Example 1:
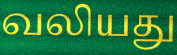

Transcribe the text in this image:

வலியது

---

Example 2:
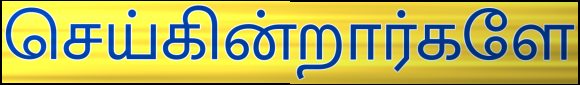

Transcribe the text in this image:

செய்கின்றார்களே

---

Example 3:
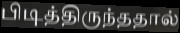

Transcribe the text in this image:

பிடித்திருந்ததால்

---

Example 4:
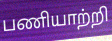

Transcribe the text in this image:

பணியாற்றி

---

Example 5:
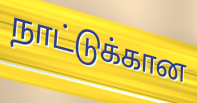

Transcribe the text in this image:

நாட்டுக்கான